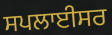
ਸਪਲਾਈਸਰ